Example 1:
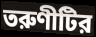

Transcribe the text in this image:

তরুণীটির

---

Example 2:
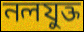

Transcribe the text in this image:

নলযুক্ত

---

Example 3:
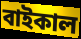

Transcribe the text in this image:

বাইকাল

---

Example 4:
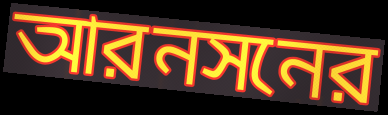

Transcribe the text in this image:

আরনসনের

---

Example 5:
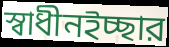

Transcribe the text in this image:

স্বাধীনইচ্ছার